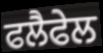
ਫਲੈਫੇਲ